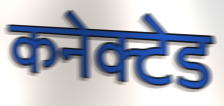
कनेक्टेड